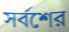
সর্বশের